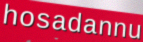
hosadannu